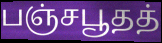
பஞ்சபூதத்